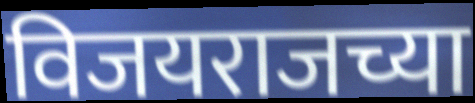
विजयराजच्या